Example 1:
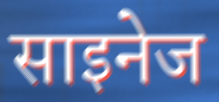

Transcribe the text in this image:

साइनेज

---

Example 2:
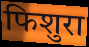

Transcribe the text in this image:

फिशुरा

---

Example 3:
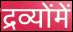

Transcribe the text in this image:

द्रव्योंमें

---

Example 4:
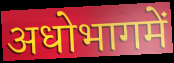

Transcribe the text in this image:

अधोभागमें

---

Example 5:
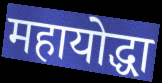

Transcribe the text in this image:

महायोद्धा